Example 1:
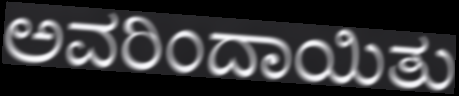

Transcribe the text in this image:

ಅವರಿಂದಾಯಿತು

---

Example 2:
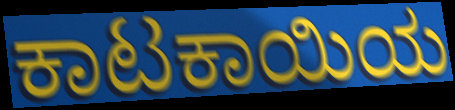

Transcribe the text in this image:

ಕಾಟಕಾಯಿಯ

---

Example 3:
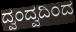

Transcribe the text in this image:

ದ್ವಂದ್ವದಿಂದ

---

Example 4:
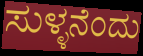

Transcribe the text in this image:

ಸುಳ್ಳನೆಂದು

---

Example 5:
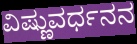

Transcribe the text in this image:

ವಿಷ್ಣುವರ್ಧನನ